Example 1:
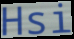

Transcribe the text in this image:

Hsi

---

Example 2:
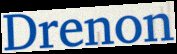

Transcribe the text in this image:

Drenon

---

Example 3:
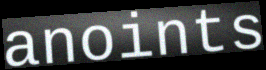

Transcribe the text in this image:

anoints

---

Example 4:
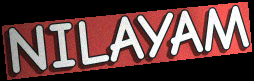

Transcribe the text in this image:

NILAYAM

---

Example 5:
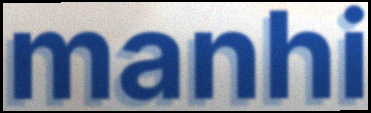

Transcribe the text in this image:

manhi